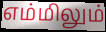
எம்மிலும்